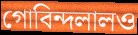
গোবিন্দলালও